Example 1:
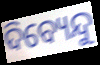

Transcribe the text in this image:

ଦିବ୍ୟେନ୍ଦୁ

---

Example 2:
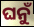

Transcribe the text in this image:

ଘନୁଁ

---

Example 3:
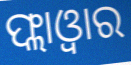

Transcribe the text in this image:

ଫ୍ଲାଓ୍ବାର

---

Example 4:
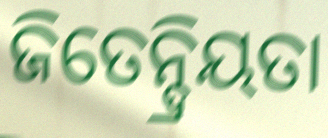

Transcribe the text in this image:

ଜିତେନ୍ଦ୍ରିୟତା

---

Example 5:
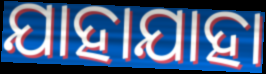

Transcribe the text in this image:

ଯାହାଯାହା